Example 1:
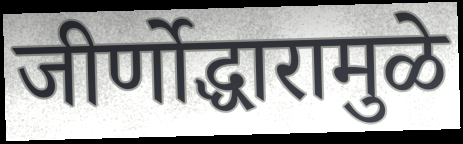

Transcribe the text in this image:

जीर्णोद्धारामुळे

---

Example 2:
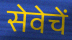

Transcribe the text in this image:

सेवेचें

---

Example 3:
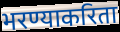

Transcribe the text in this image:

भरण्याकरिता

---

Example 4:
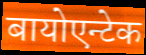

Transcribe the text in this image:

बायोएन्टेक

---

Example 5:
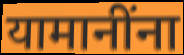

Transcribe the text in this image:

यामानींना